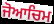
ਜੋਆਚਿਮ